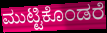
ಮುಟ್ಟಿಕೊಂಡರೆ